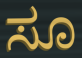
ಸೂ